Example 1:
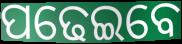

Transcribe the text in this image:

ପଢେଇବେ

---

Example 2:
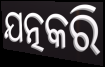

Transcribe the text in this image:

ଯତ୍ନକରି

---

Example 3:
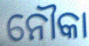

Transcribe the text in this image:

ନୌକା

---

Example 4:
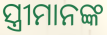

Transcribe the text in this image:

ସ୍ତ୍ରୀମାନଙ୍କ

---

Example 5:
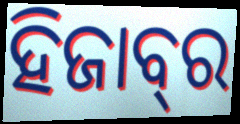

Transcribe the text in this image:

ହିଜାବ୍‌ର